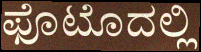
ಫೊಟೊದಲ್ಲಿ